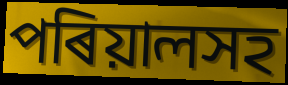
পৰিয়ালসহ